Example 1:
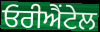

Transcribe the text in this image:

ਓਰੀਐਂਟੇਲ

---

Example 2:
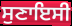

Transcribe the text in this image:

ਸੁਣਾਇਸੀ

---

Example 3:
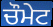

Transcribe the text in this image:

ਚੌਮੇਟ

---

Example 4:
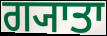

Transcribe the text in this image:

ਗ੍ਯਾਤਾ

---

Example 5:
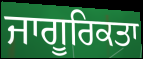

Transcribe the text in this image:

ਜਾਗੂਰਿਕਤਾ